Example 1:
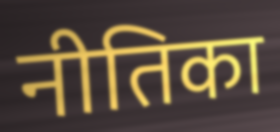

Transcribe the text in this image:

नीतिका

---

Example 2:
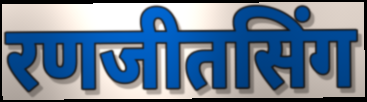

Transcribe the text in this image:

रणजीतसिंग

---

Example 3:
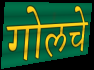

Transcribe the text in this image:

गोलचे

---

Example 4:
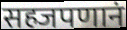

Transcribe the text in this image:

सहजपणानं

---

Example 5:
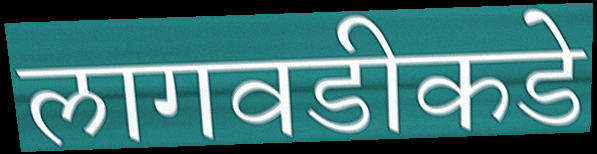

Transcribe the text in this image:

लागवडीकडे